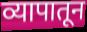
व्यापातून